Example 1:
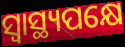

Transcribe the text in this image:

ସ୍ଵାସ୍ଥ୍ୟପକ୍ଷେ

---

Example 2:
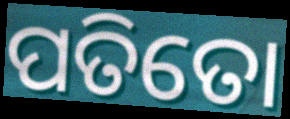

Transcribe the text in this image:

ପତିତୋ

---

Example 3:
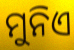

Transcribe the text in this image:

ମୁନିଏ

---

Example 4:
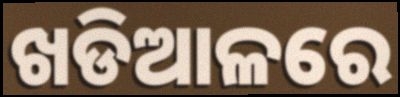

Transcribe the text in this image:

ଖଡିଆଳରେ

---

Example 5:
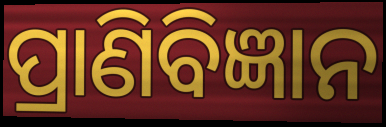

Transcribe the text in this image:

ପ୍ରାଣିବିଜ୍ଞାନ